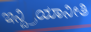
ಇನ್ದ್ರಿಯಾನೀತಿ